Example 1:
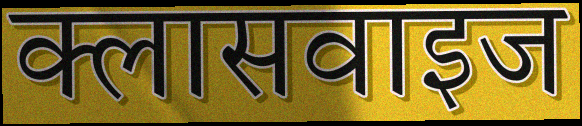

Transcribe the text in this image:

क्लासवाइज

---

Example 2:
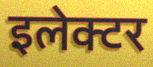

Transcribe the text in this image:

इलेक्टर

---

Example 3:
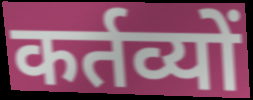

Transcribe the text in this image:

कर्तव्यों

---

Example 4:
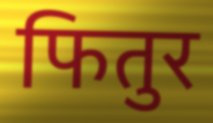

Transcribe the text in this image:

फितुर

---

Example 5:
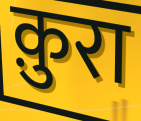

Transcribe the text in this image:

क़ुरा